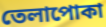
তেলাপোকা